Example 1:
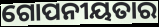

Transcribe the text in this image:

ଗୋପନୀୟତାର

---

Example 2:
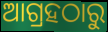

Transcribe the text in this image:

ଆଗ୍ରହଠାରୁ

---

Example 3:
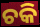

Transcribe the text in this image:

ଚକି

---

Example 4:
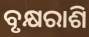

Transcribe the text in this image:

ବୃକ୍ଷରାଶି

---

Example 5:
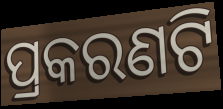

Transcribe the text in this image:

ପ୍ରକରଣଟି